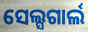
ସେଲ୍ସଗାର୍ଲ